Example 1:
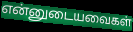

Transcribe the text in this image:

என்னுடையவைகள்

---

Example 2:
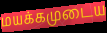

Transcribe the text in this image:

மயக்கமுடைய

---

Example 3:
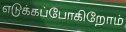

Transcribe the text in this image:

எடுக்கப்போகிறோம்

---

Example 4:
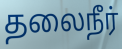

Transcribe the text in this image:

தலைநீர்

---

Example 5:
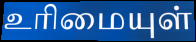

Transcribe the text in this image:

உரிமையுள்